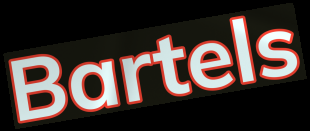
Bartels